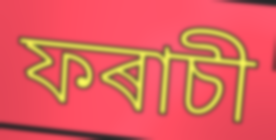
ফৰাচী